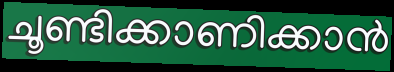
ചൂണ്ടിക്കാണിക്കാൻ